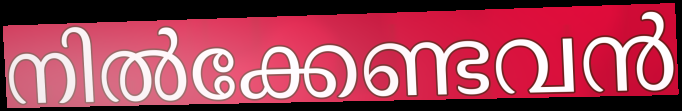
നിൽക്കേണ്ടവൻ